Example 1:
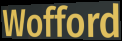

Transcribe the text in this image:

Wofford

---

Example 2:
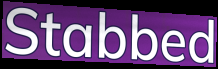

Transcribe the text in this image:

Stabbed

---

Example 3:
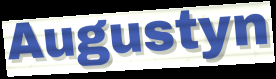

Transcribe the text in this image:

Augustyn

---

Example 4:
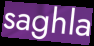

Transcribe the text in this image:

saghla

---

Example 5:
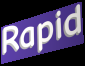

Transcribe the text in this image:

Rapid